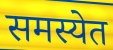
समस्येत